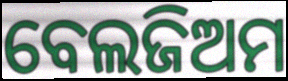
ବେଲଜିଅମ